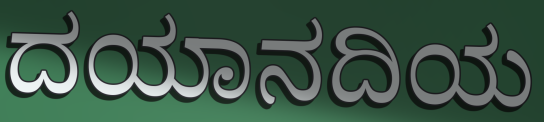
ದಯಾನದಿಯ